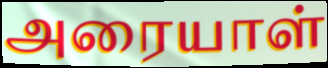
அரையாள்